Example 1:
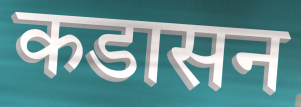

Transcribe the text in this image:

कडासन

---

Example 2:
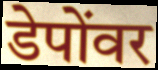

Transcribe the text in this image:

डेपोंवर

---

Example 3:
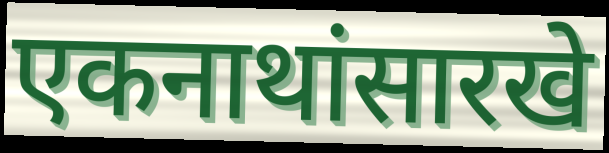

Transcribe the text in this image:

एकनाथांसारखे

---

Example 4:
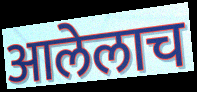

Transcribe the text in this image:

आलेलाच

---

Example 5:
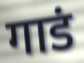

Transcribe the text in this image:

गाडं